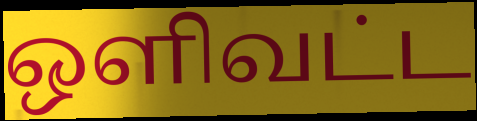
ஒளிவட்ட